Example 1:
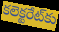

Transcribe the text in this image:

కలెక్టరేట్‌కు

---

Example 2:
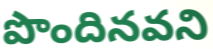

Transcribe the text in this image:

పొందినవని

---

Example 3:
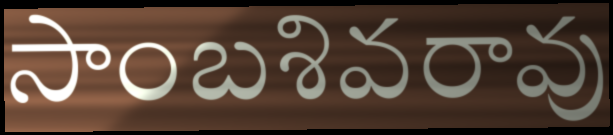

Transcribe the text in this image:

సాంబశివరావు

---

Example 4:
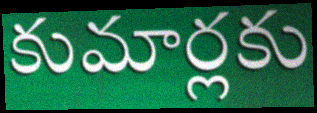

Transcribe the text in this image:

కుమార్లకు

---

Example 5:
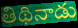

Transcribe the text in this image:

తిథినాడు